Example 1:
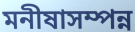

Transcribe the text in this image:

মনীষাসম্পন্ন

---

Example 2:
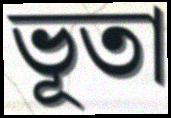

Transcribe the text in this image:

ভূতা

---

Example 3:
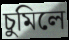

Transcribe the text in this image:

চুমিলে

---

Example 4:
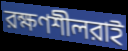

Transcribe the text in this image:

রক্ষণশীলরাই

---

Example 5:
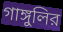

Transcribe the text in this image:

গাঙ্গুলির